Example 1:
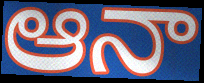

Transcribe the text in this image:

ఆనా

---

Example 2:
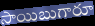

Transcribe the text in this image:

సాయిబుగారూ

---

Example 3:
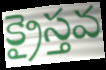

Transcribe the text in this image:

క్రైస్తవ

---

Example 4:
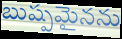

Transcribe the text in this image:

బుష్పమైనను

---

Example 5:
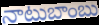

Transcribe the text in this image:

నాటుబాంబు